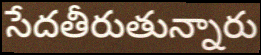
సేదతీరుతున్నారు